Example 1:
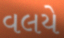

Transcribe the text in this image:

વલયે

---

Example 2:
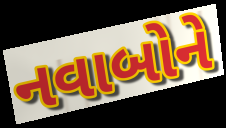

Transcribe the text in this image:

નવાબોને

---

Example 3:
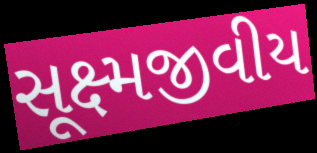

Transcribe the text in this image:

સૂક્ષ્મજીવીય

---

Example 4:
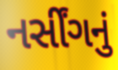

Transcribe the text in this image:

નર્સીંગનું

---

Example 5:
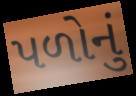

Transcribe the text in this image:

પળોનું